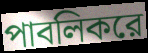
পাবলিকরে